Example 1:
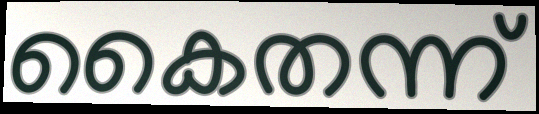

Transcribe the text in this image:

കൈതന്ന്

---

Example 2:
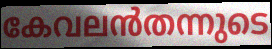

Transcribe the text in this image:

കേവലൻതന്നുടെ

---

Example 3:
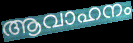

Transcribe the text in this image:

ആവാഹനം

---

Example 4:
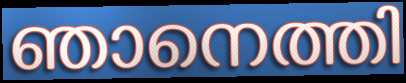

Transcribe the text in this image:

ഞാനെത്തി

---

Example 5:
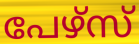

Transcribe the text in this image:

പേഴ്സ്